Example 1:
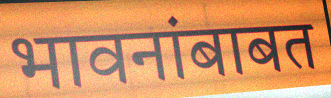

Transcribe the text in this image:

भावनांबाबत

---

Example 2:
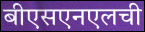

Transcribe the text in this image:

बीएसएनएलची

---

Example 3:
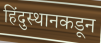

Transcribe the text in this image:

हिंदुस्थानकडून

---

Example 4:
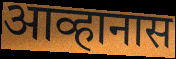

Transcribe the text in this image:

आव्हानास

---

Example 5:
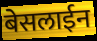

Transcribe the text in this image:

बेसलाईन